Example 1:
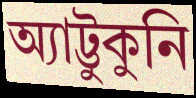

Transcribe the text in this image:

অ্যাট্টুকুনি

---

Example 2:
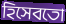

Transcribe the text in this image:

হিসেবতো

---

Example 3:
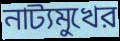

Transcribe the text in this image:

নাট্যমুখের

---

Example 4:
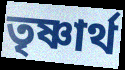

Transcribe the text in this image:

তৃষ্ণার্থ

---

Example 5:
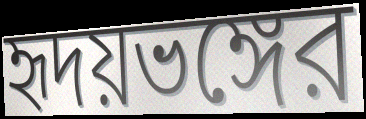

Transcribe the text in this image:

হৃদয়ভঙ্গের